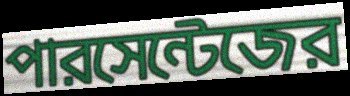
পারসেন্টেজের